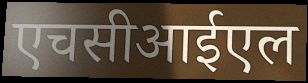
एचसीआईएल